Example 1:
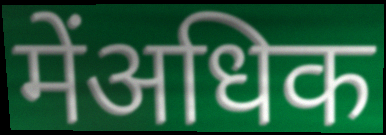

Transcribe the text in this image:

मेंअधिक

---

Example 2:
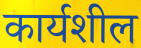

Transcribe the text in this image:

कार्यशील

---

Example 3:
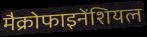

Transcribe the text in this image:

मैक्रोफाइनेंशियल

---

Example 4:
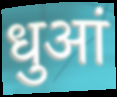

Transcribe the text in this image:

धुआं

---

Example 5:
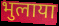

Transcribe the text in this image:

भुलाया